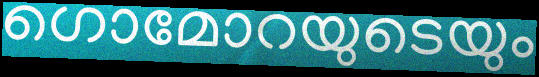
ഗൊമോറയുടെയും